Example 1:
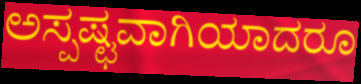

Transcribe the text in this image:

ಅಸ್ಪಷ್ಟವಾಗಿಯಾದರೂ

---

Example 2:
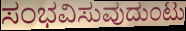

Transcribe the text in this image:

ಸಂಭವಿಸುವುದುಂಟು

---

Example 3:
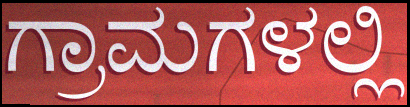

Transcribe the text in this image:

ಗ್ರಾಮಗಳಲ್ಲಿ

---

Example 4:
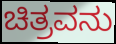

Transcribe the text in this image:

ಚಿತ್ರವನು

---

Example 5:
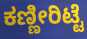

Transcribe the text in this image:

ಕಣ್ಣೀರಿಟ್ಟೆ